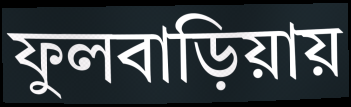
ফুলবাড়িয়ায়